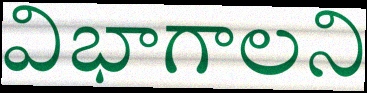
విభాగాలని